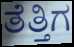
ತೆತ್ತಿಗ